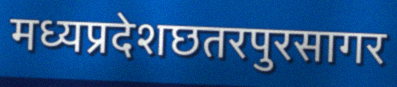
मध्यप्रदेशछतरपुरसागर